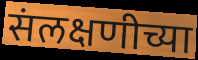
संलक्षणीच्या